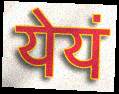
येयं